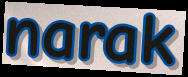
narak